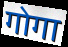
गोगा